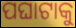
ପଘାଟାକୁ